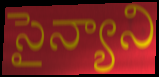
సైన్యాని